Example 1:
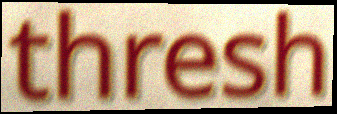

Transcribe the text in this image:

thresh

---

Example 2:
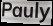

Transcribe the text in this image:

Pauly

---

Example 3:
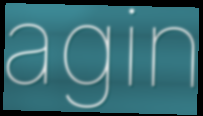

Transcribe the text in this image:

agin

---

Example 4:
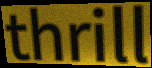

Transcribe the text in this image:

thrill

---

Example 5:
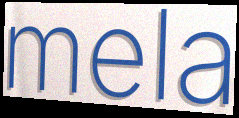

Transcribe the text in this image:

mela